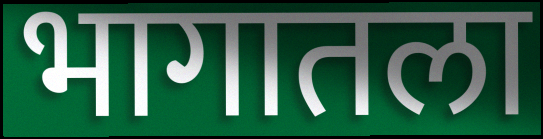
भागातला